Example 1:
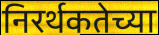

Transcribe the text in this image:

निरर्थकतेच्या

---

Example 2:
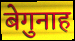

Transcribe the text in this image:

बेगुनाह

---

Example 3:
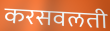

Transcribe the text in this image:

करसवलती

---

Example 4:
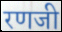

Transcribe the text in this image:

रणजी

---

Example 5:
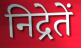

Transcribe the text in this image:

निद्रेतें